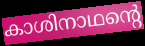
കാശിനാഥന്റെ